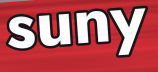
suny